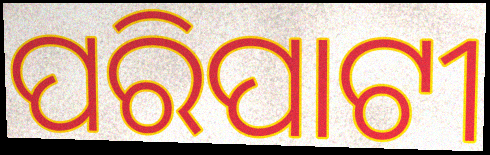
ପରିପାଟୀ